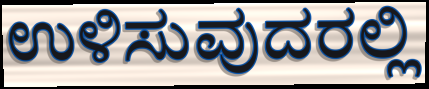
ಉಳಿಸುವುದರಲ್ಲಿ